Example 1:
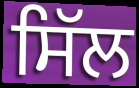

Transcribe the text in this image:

ਸਿੱਲ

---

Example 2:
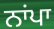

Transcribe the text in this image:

ਨਾਂਪਾ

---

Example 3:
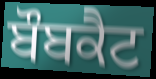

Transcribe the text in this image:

ਬੌਬਕੈਟ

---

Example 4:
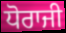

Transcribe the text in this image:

ਧੋਰਾਜੀ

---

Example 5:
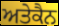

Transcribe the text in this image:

ਅਤੇਕੈਨ